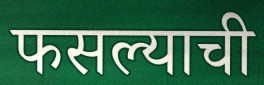
फसल्याची